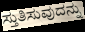
ಸ್ತುತಿಸುವುದನ್ನು